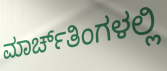
ಮಾರ್ಚ್‌ತಿಂಗಳಲ್ಲಿ